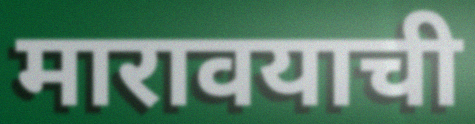
मारावयाची